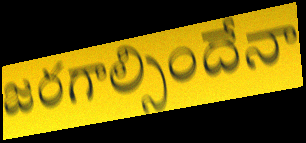
జరగాల్సిందేనా